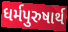
ધર્મપુરુષાર્થ